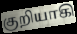
குறியாகி